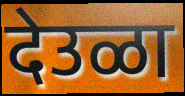
देउळा